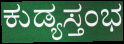
ಕುಡ್ಯಸ್ತಂಭ